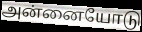
அன்னையோடு